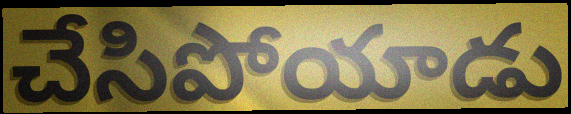
చేసిపోయాడు